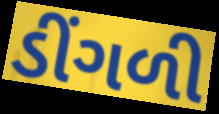
ડીંગળી